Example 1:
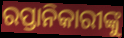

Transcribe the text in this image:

ରପ୍ତାନିକାରୀଙ୍କୁ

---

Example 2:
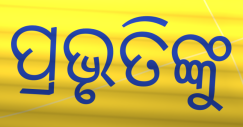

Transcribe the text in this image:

ପ୍ରଭୃତିଙ୍କୁ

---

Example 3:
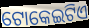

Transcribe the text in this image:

ଟୋକେଇଟିଏ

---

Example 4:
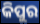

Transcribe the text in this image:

କିପୁର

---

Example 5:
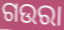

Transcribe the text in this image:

ଗଉରା